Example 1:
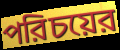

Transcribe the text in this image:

পরিচয়ের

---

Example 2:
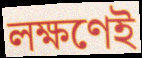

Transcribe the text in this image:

লক্ষণেই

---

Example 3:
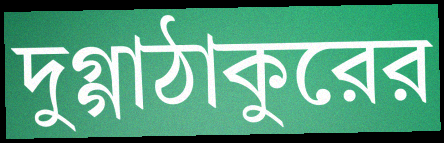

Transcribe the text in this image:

দুগ্গাঠাকুরের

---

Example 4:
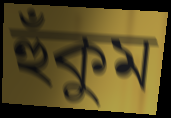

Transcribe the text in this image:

হুঁকুম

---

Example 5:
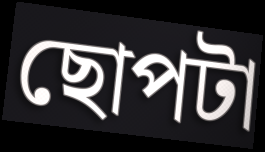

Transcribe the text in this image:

ছোপটা